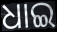
ଧାଇ